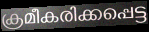
ക്രമീകരിക്കപ്പെട്ട